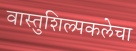
वास्तुशिल्पकलेचा